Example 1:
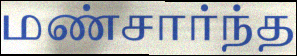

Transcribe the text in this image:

மண்சார்ந்த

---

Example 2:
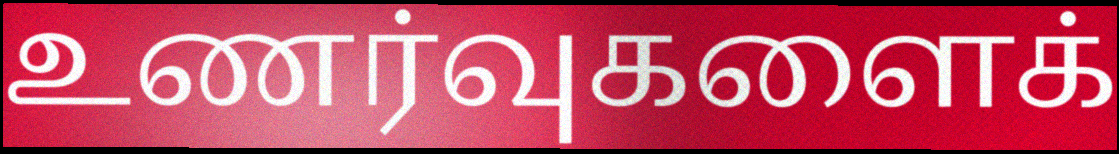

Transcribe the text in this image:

உணர்வுகளைக்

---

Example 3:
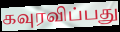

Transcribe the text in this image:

கவுரவிப்பது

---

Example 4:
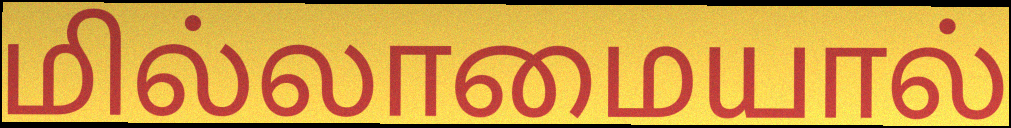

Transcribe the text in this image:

மில்லாமையால்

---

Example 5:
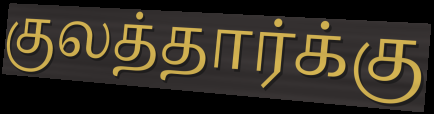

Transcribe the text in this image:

குலத்தார்க்கு